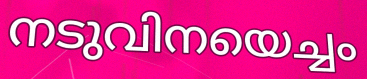
നടുവിനയെച്ചം